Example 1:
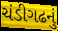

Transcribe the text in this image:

ચંડીગઢનું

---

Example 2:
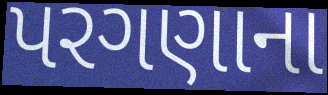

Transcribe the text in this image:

પરગણાના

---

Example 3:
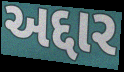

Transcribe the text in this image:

અદ્દાર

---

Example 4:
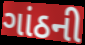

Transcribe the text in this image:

ગાંઠની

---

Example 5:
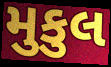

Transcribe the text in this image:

મુકુલ